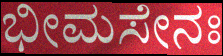
ಭೀಮಸೇನಃ